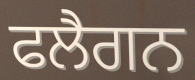
ਫਲੈਗਨ